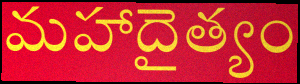
మహాదైత్యం